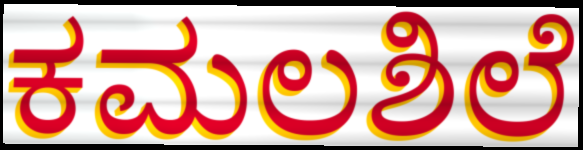
ಕಮಲಶಿಲೆ